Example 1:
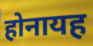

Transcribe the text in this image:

होनायह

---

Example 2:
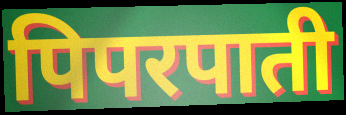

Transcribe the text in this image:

पिपरपाती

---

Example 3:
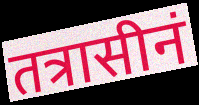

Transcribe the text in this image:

तत्रासीनं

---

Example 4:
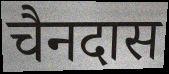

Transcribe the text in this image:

चैनदास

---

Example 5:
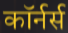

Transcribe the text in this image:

कॉर्नर्स